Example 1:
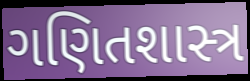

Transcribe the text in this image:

ગણિતશાસ્ત્ર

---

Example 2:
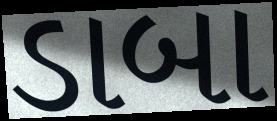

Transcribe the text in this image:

ડાબા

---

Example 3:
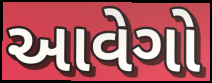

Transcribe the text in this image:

આવેગો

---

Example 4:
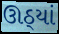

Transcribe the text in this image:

ઊઠ્યાં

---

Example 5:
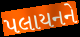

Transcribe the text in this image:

પલાયનને